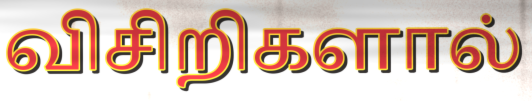
விசிறிகளால்